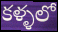
కళ్ళలో